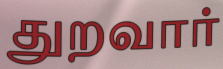
துறவார்